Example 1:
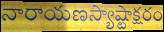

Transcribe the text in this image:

నారాయణస్యాష్టాక్షరం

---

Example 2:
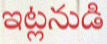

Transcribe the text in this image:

ఇట్లనుడి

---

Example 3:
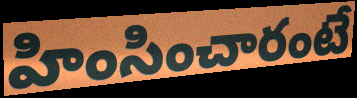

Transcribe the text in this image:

హింసించారంటే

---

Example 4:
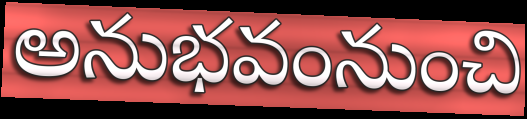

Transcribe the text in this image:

అనుభవంనుంచి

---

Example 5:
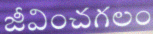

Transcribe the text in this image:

జీవించగలం